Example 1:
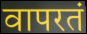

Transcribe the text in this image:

वापरतं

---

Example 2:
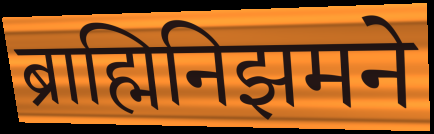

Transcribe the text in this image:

ब्राह्मिनिझमने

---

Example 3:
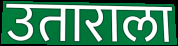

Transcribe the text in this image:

उताराला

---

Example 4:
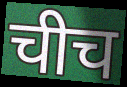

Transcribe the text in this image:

चीच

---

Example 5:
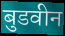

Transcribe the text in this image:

बुडवीन